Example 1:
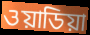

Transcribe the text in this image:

ওয়াডিয়া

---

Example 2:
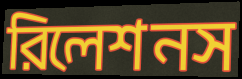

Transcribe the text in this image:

রিলেশনস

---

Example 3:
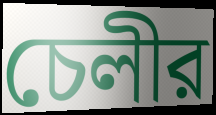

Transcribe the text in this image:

চেলীর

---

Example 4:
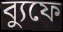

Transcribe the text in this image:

ব্যুফে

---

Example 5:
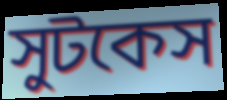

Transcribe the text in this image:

সুটকেস